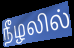
நீழலில்